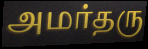
அமர்தரு